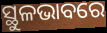
ସ୍ଥୁଳଭାବରେ